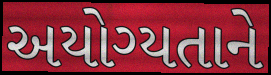
અયોગ્યતાને